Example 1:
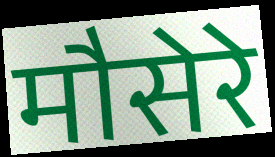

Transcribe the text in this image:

मौसेरे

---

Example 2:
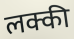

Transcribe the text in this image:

लक्की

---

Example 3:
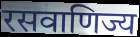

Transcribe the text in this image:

रसवाणिज्य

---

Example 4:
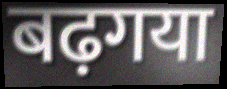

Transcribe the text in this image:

बढ़गया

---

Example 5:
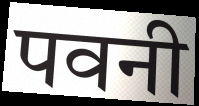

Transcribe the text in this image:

पवनी